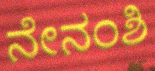
ನೇನಂಶಿ